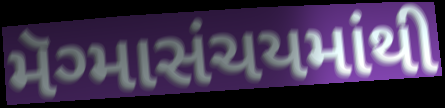
મૅગ્માસંચયમાંથી